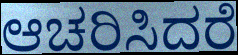
ಆಚರಿಸಿದರೆ